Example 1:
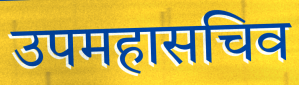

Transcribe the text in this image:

उपमहासचिव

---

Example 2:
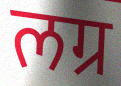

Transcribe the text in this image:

लग्र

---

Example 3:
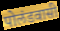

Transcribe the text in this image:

पोलंडवासी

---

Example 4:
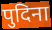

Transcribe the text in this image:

पुदिना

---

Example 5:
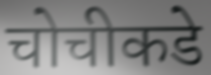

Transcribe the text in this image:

चोचीकडे